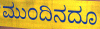
ಮುಂದಿನದೂ